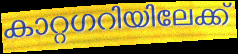
കാറ്റഗറിയിലേക്ക്